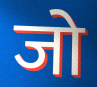
जो